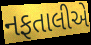
નફતાલીએ